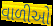
વાળીઓ